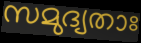
സമുദ്യതാഃ